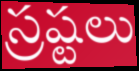
స్రష్టలు